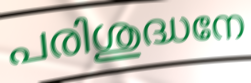
പരിശുദ്ധനേ